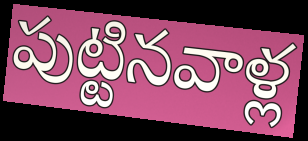
పుట్టినవాళ్ల